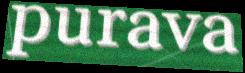
purava